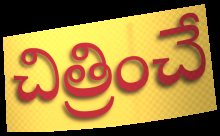
చిత్రించే